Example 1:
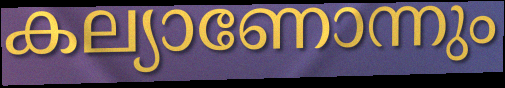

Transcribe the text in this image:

കല്യാണോന്നും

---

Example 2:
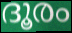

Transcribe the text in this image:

ദൂരം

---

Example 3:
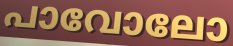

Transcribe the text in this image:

പാവോലോ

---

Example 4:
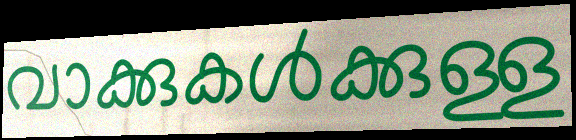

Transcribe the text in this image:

വാക്കുകൾക്കുള്ള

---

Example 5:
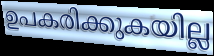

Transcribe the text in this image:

ഉപകരിക്കുകയില്ല